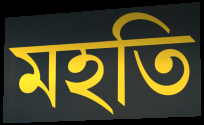
মহতি